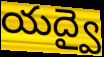
యద్వై